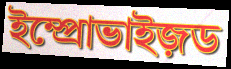
ইম্প্রোভাইজ়ড